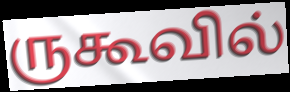
ருகூவில்